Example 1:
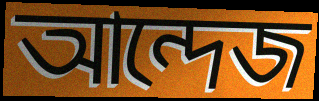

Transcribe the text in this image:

আন্দেজ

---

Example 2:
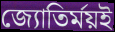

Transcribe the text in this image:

জ্যোতির্ময়ই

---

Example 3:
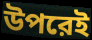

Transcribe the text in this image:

উপরেই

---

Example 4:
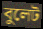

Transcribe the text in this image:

বুলেট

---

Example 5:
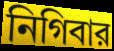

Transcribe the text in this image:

নিগিবার